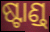
ଷ୍ଟାଣ୍ଡ୍